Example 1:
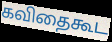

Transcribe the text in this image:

கவிதைகூட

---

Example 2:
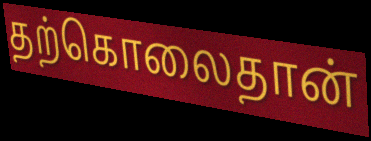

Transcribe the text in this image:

தற்கொலைதான்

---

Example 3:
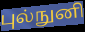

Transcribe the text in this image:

புல்நுனி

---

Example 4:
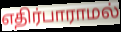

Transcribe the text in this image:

எதிர்பாராமல்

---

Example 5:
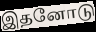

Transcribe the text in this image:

இதனோடு